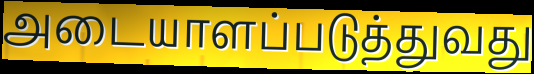
அடையாளப்படுத்துவது